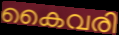
കൈവരി